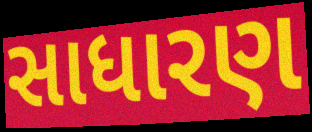
સાધારણ